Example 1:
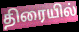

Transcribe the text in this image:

திரையில்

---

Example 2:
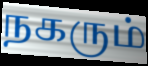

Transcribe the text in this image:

நகரும்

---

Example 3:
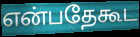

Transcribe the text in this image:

என்பதேகூட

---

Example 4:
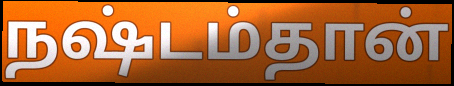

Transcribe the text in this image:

நஷ்டம்தான்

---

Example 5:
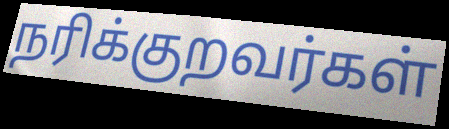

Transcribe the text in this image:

நரிக்குறவர்கள்